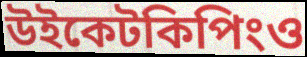
উইকেটকিপিংও